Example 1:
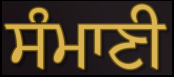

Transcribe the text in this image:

ਸੰਮਾਣੀ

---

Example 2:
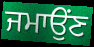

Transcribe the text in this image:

ਜਮਾਉਂਣ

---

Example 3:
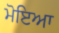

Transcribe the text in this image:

ਮੋਇਆ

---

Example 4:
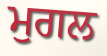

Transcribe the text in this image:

ਮੁਗਲ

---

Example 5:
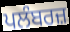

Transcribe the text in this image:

ਪਲੰਬਰਜ਼